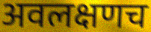
अवलक्षणच